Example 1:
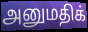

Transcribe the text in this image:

அனுமதிக்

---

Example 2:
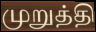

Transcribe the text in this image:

முறுத்தி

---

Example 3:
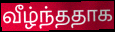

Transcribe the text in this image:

வீழ்ந்ததாக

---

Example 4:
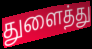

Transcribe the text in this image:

துளைத்து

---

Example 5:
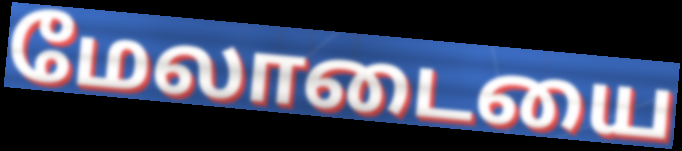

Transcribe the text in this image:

மேலாடையை